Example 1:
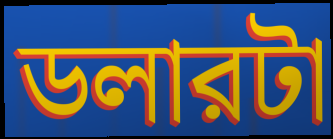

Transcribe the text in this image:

ডলারটা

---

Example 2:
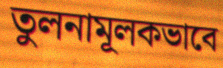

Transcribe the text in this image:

তুলনামূলকভাবে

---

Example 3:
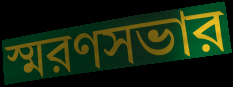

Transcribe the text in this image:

স্মরণসভার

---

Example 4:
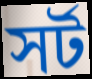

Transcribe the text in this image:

সর্ট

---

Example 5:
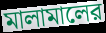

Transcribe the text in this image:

মালামালের